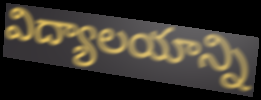
విద్యాలయాన్ని